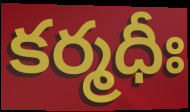
కర్మధీః